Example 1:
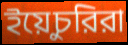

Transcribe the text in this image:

ইয়েচুরিরা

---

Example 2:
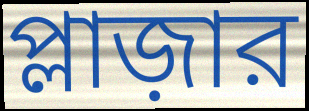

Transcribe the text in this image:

প্লাজ়ার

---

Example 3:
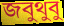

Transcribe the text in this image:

জবুথুবু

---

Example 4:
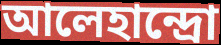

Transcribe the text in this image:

আলেহান্দ্রো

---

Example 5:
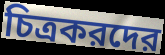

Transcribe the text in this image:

চিত্রকরদের